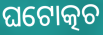
ଘଟୋତ୍କଚ